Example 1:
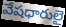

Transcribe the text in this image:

వేషధారులై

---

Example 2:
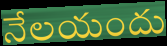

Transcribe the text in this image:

నేలయందు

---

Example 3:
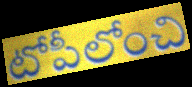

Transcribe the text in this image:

టోపీలోంచి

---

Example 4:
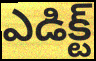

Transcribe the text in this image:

ఎడిక్ట్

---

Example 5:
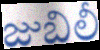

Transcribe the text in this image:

జుబిలీ